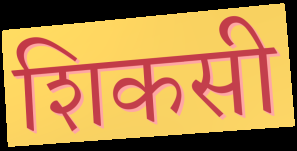
शिकसी